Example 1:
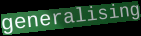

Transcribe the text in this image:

generalising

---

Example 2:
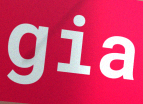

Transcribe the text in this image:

gia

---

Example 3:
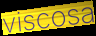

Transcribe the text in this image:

viscosa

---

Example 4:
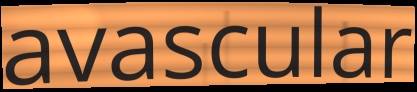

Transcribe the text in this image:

avascular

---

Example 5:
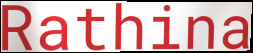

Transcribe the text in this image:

Rathina